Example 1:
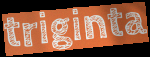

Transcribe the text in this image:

triginta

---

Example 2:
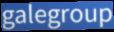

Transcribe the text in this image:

galegroup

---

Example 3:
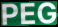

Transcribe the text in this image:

PEG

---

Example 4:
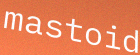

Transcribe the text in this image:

mastoid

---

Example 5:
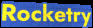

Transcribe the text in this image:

Rocketry